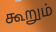
கூறும்